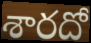
శారదో